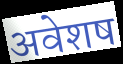
अवेशष